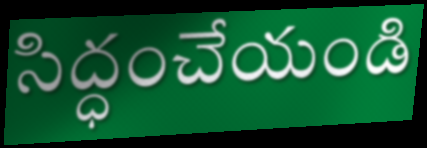
సిద్ధంచేయండి